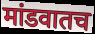
मांडवातच